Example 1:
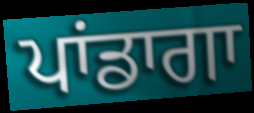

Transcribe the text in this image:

ਪਾਂਡਾਗਾ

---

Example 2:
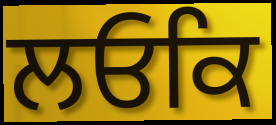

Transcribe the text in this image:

ਲਓਕਿ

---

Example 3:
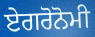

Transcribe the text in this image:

ਏਗਰੋਨੋਮੀ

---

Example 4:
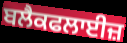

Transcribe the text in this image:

ਬਲੈਕਫਲਾਈਜ਼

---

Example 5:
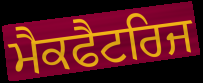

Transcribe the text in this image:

ਮੈਕਫੈਟਰਿਜ